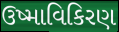
ઉષ્માવિકિરણ